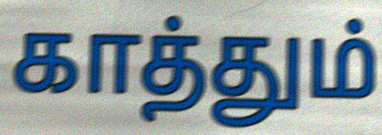
காத்தும்